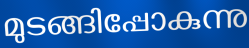
മുടങ്ങിപ്പോകുന്നു